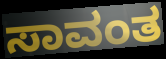
ಸಾವಂತ